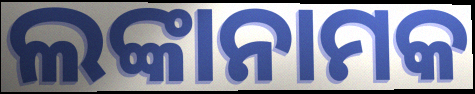
ଲଙ୍କାନାମକ